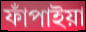
ফাঁপাইয়া